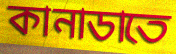
কানাডাতে